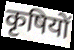
कृषियों